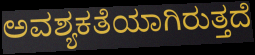
ಅವಶ್ಯಕತೆಯಾಗಿರುತ್ತದೆ